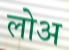
लोअ